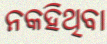
ନକହିଥିବା